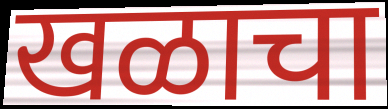
खळाचा